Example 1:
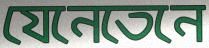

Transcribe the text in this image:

যেনেতেনে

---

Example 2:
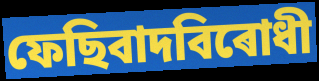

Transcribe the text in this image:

ফেছিবাদবিৰোধী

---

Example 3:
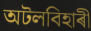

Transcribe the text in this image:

অটলবিহাৰী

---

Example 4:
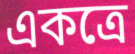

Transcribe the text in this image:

একত্ৰে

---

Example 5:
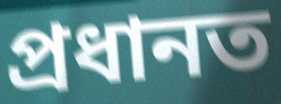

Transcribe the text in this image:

প্ৰধানত